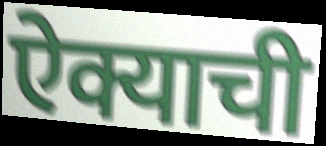
ऐक्याची